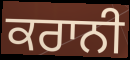
ਕਰਾਨੀ